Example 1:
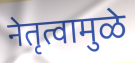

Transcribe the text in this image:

नेतृत्वामुळे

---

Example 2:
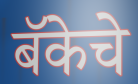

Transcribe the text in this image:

बॅकेचे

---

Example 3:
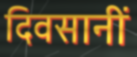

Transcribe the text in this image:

दिवसानीं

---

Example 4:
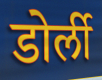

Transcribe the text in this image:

डोर्ली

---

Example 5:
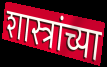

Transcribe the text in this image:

शास्त्रांच्या